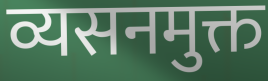
व्यसनमुक्त